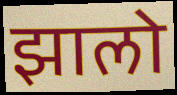
झालो